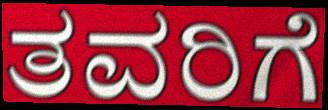
ತವರಿಗೆ